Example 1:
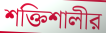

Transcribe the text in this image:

শক্তিশালীর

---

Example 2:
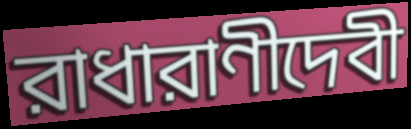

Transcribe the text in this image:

রাধারাণীদেবী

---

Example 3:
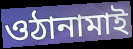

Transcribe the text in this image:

ওঠানামাই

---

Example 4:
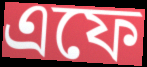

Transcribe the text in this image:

এফে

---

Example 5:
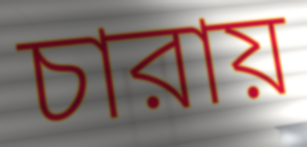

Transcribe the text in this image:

চারায়